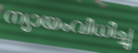
ന്യായംവിധിച്ചു